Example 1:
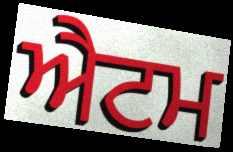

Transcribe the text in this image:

ਐਟਮ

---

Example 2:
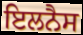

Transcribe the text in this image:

ਇਲਨੈਸ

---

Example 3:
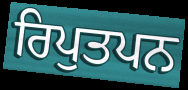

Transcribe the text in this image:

ਰਿਪੁਤਪਨ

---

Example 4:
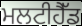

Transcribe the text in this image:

ਮਲਟੀਹੈੱਡ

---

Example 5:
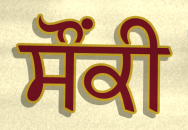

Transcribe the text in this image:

ਸੌਂਕੀ